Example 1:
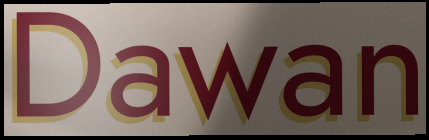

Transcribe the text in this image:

Dawan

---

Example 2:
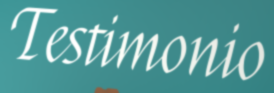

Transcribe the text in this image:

Testimonio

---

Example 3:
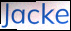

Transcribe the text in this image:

Jacke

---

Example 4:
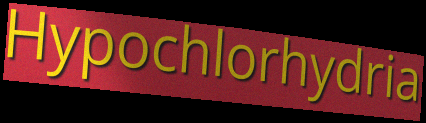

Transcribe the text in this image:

Hypochlorhydria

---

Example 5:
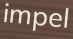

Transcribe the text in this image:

impel